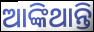
ଆଙ୍କିଥାନ୍ତି